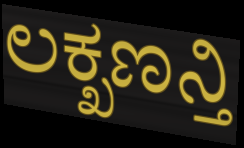
ಲಕ್ಖಣನ್ತಿ